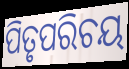
ପିତୃପରିଚୟ